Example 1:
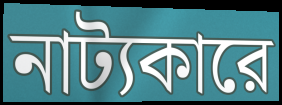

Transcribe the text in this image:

নাট্যকারে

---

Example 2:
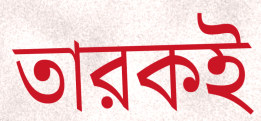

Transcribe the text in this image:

তারকই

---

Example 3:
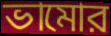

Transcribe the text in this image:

ভামোর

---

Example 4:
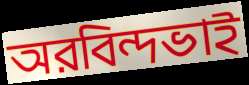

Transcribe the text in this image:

অরবিন্দভাই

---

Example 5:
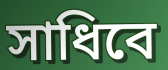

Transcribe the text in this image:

সাধিবে